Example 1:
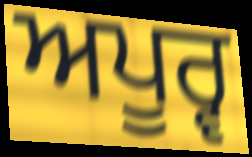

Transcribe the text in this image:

ਅਪੂਰ੍ਵ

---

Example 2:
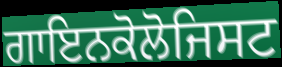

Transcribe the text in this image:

ਗਾਇਨਕੋਲੋਜਿਸਟ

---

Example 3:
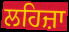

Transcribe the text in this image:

ਲਹਿਜ਼ਾ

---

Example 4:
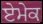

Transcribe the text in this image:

ਏਮੇਕ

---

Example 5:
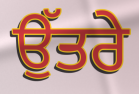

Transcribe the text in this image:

ਉੱਤਰੇ